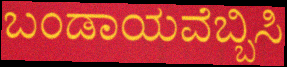
ಬಂಡಾಯವೆಬ್ಬಿಸಿ